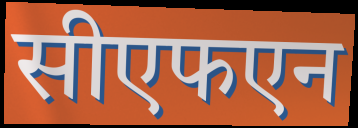
सीएफएन